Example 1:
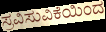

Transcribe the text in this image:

ಸ್ರವಿಸುವಿಕೆಯಿಂದ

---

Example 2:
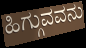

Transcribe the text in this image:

ಹಿಗ್ಗುವವನು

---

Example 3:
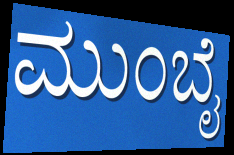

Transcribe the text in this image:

ಮುಂಬೈ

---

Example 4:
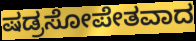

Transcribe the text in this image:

ಷಡ್ರಸೋಪೇತವಾದ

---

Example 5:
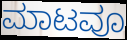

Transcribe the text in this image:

ಮಾಟವೂ